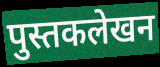
पुस्तकलेखन